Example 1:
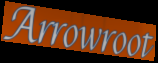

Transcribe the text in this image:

Arrowroot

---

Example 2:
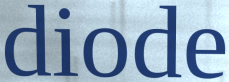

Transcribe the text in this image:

diode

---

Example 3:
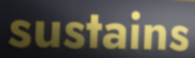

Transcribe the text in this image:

sustains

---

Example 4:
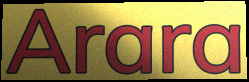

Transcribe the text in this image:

Arara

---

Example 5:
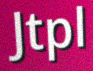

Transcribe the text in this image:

Jtpl